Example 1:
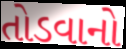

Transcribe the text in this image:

તોડવાનો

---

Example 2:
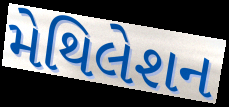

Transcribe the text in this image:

મેથિલેશન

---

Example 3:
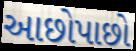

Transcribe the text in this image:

આછોપાછો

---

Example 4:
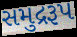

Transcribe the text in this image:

સમુદ્રરૂપ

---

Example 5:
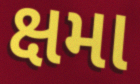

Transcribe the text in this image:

ક્ષમા